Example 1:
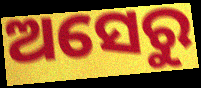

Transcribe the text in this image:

ଅସେରୁ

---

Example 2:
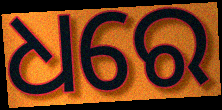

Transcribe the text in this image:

ଧରେ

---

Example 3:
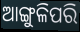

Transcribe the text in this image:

ଆଙ୍ଗୁଳିପରି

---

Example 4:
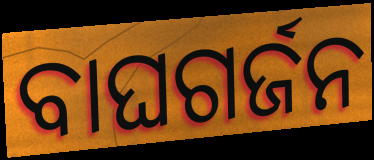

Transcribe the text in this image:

ବାଘଗର୍ଜନ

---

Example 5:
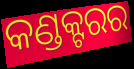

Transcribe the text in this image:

କଣ୍ଡକ୍ଟରର